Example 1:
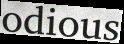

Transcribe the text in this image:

odious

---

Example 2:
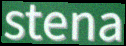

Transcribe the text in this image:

stena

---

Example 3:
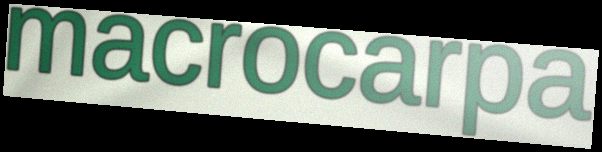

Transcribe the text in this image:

macrocarpa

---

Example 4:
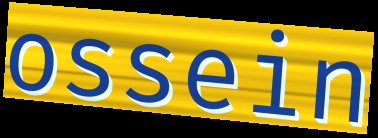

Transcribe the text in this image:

ossein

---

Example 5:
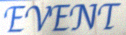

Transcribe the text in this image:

EVENT